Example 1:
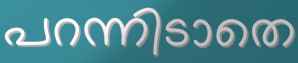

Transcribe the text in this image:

പറന്നിടാതെ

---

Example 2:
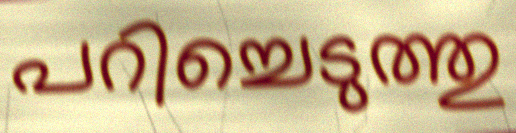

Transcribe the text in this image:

പറിച്ചെടുത്തു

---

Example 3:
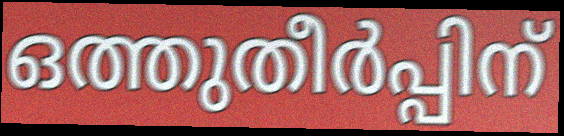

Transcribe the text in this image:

ഒത്തുതീർപ്പിന്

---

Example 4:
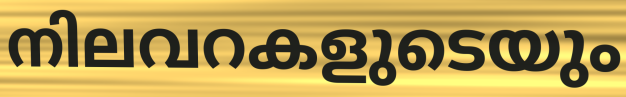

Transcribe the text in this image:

നിലവറകളുടെയും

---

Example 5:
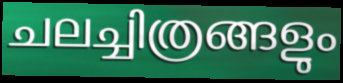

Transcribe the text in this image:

ചലച്ചിത്രങ്ങളും